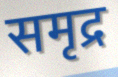
समृद्र